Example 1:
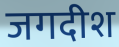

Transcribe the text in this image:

जगदीश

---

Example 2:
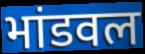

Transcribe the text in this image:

भांडवल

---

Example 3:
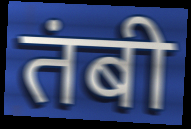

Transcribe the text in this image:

तंबी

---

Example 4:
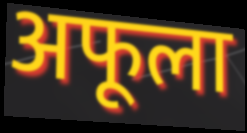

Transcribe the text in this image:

अफूला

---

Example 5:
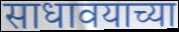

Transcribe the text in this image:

साधावयाच्या